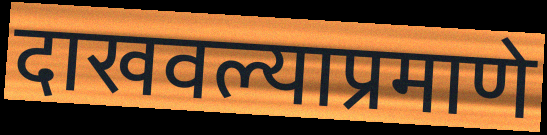
दाखवल्याप्रमाणे